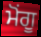
ਮੋਂਗੂ